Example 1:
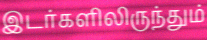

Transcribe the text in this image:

இடர்களிலிருந்தும்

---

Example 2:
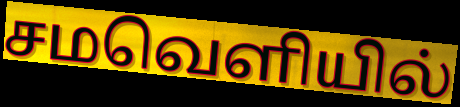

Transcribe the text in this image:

சமவெளியில்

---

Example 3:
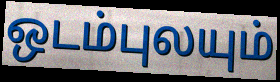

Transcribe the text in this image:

ஒடம்புலயும்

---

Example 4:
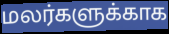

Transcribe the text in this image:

மலர்களுக்காக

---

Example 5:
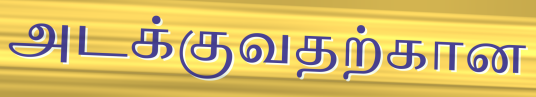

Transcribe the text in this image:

அடக்குவதற்கான